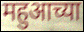
महुआच्या